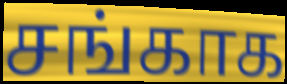
சங்காக